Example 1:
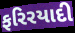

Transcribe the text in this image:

ફરિરયાદી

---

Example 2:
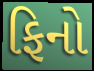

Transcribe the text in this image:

ફિનો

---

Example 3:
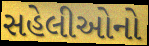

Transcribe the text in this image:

સહેલીઓનો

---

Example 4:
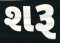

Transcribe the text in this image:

શરૂ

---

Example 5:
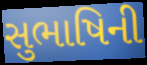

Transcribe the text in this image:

સુભાષિની